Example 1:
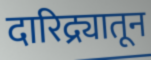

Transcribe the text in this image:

दारिद्र्यातून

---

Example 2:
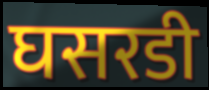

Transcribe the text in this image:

घसरडी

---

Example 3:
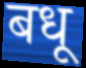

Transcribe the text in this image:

बधू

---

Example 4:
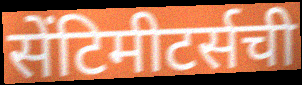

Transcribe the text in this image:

सेंटिमीटर्सची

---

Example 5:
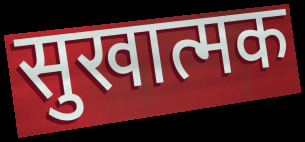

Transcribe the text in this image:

सुखात्मक